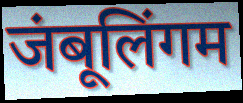
जंबूलिंगम